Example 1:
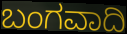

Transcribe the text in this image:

ಬಂಗವಾದಿ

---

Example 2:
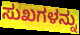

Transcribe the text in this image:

ಸುಖಗಳನ್ನು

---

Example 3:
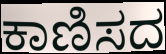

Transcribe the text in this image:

ಕಾಣಿಸದ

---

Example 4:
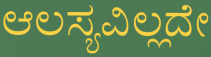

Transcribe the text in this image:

ಆಲಸ್ಯವಿಲ್ಲದೇ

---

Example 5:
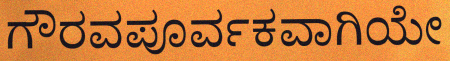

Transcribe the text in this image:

ಗೌರವಪೂರ್ವಕವಾಗಿಯೇ